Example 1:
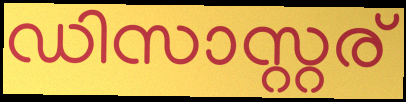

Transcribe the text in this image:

ഡിസാസ്റ്റര്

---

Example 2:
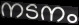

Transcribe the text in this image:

നടനം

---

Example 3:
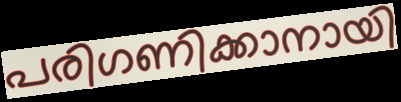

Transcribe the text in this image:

പരിഗണിക്കാനായി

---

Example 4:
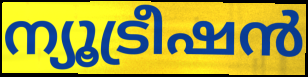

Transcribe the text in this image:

ന്യൂട്രീഷൻ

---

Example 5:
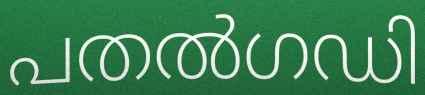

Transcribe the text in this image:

പതൽഗഡി